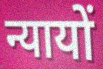
न्यायों